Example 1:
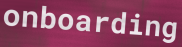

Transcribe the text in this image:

onboarding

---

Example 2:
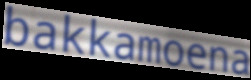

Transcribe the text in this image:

bakkamoena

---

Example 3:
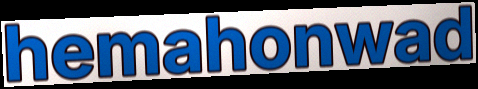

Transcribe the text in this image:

hemahonwad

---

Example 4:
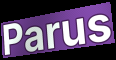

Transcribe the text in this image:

Parus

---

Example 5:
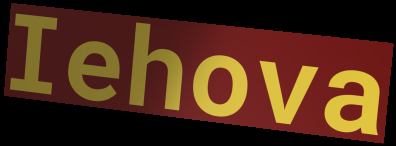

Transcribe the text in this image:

Iehova